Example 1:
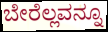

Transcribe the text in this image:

ಬೇರೆಲ್ಲವನ್ನೂ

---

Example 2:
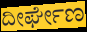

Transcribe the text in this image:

ದೀರ್ಘೇಣ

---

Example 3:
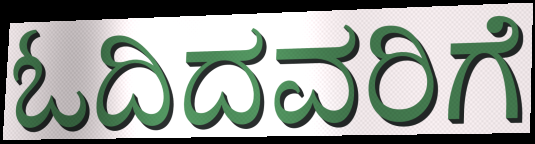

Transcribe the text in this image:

ಓದಿದವರಿಗೆ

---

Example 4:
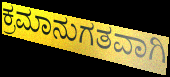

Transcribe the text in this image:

ಕ್ರಮಾನುಗತವಾಗಿ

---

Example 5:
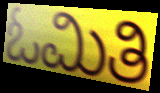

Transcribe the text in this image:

ಓಮಿತಿ